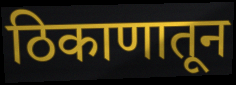
ठिकाणातून